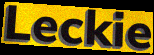
Leckie